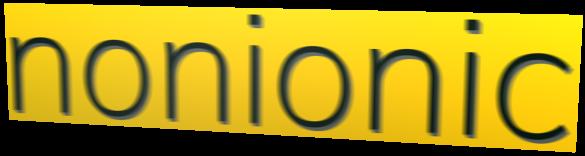
nonionic